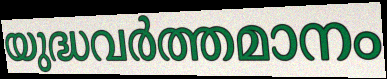
യുദ്ധവർത്തമാനം